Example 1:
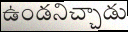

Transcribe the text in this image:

ఉండనిచ్చాడు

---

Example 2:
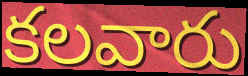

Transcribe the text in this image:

కలవారు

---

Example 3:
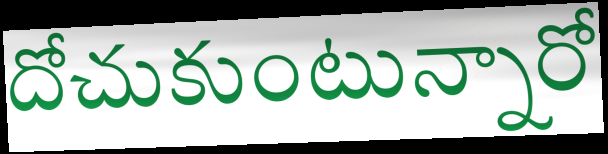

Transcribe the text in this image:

దోచుకుంటున్నారో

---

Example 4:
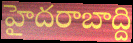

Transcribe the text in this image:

హైదరాబాద్ది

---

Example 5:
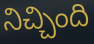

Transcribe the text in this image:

నిచ్చింది